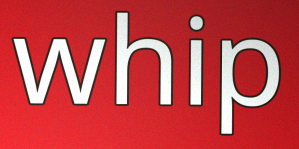
whip